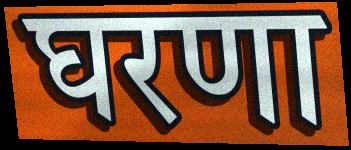
घरणा